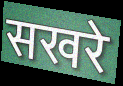
सखरे